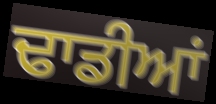
ਢਾਡੀਆਂ